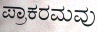
ಪ್ರಾಕರಮವು